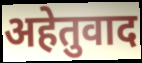
अहेतुवाद